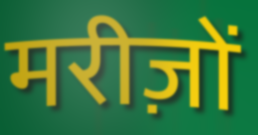
मरीज़ों